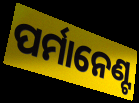
ପର୍ମାନେଣ୍ଟ